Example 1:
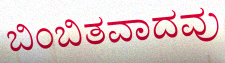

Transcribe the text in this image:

ಬಿಂಬಿತವಾದವು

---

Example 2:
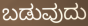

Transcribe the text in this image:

ಬಡುವುದು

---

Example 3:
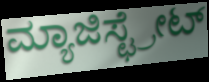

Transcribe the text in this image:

ಮ್ಯಾಜಿಸ್ಟ್ರೇಟ್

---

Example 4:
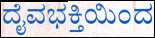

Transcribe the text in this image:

ದೈವಭಕ್ತಿಯಿಂದ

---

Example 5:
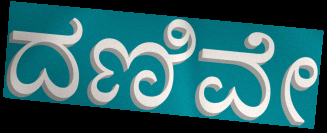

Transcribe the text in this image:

ದಣಿವೇ